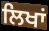
ਲਿਖਾਂ